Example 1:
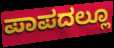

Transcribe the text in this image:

ಪಾಪದಲ್ಲೂ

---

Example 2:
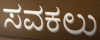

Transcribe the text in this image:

ಸವಕಲು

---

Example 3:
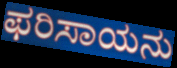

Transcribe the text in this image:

ಫರಿಸಾಯನು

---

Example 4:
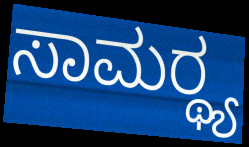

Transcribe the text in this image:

ಸಾಮರ್‍ಥ್ಯ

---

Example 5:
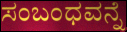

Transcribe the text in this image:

ಸಂಬಂಧವನ್ನೆ